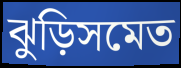
ঝুড়িসমেত